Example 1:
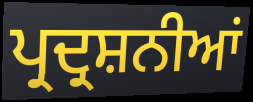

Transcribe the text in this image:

ਪ੍ਰਦ੍ਰਸ਼ਨੀਆਂ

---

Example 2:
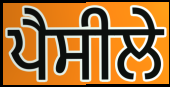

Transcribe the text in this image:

ਪੈਸੀਲੇ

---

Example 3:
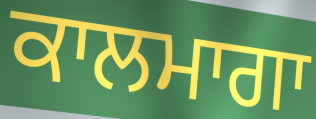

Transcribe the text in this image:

ਕਾਲਮਾਗਾ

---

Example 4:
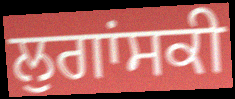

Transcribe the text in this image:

ਲੁਗਾਂਸਕੀ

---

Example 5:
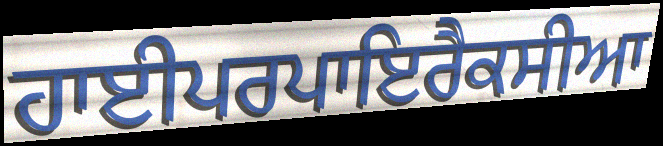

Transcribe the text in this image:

ਹਾਈਪਰਪਾਇਰੈਕਸੀਆ